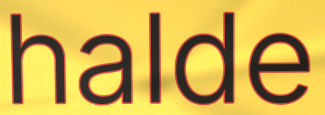
halde